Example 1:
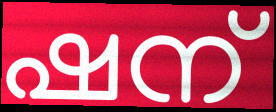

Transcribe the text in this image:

ഷന്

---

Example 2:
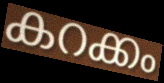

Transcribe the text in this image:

കറക്കം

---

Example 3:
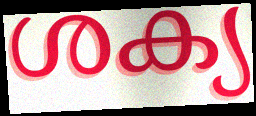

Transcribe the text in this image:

ശക്യ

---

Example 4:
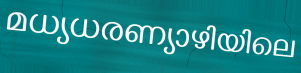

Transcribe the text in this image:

മധ്യധരണ്യാഴിയിലെ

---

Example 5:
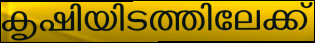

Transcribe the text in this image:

കൃഷിയിടത്തിലേക്ക്